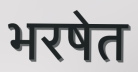
भरषेत